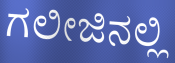
ಗಲೀಜಿನಲ್ಲಿ